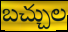
బచ్చుల